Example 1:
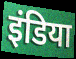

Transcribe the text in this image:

इंडिया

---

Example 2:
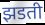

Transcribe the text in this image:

झडती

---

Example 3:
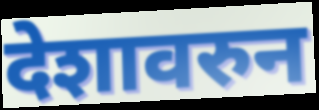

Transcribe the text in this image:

देशावरुन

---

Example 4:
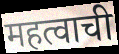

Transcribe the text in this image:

महत्वाची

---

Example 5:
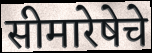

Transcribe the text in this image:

सीमारेषेचे